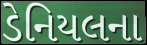
ડેનિયલના